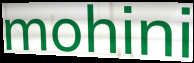
mohini